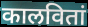
कालवितां